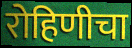
रोहिणीचा